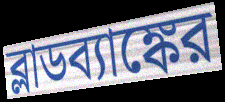
ব্লাডব্যাঙ্কের